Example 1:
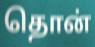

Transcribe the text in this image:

தொன்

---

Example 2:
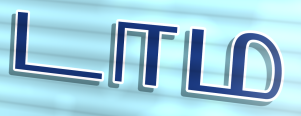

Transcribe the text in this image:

டாம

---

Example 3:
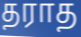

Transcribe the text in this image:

தராத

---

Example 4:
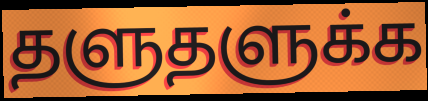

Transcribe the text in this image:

தளுதளுக்க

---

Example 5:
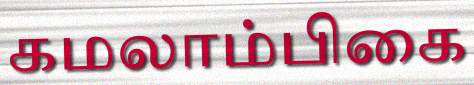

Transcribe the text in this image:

கமலாம்பிகை